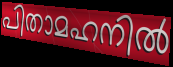
പിതാമഹനിൽ